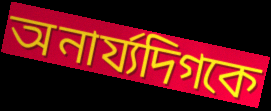
অনার্য্যদিগকে